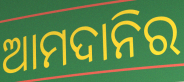
ଆମଦାନିର